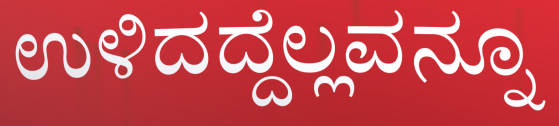
ಉಳಿದದ್ದೆಲ್ಲವನ್ನೂ